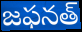
జఫనత్